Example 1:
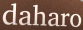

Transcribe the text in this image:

daharo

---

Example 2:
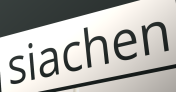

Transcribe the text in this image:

siachen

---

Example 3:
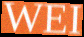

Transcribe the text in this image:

WEI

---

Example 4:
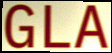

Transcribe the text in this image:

GLA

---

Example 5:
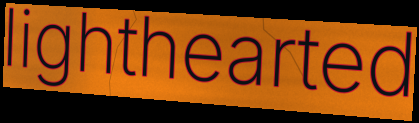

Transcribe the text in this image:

lighthearted